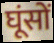
घूंसों